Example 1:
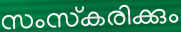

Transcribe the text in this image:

സംസ്‌കരിക്കും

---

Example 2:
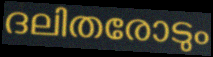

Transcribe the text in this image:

ദലിതരോടും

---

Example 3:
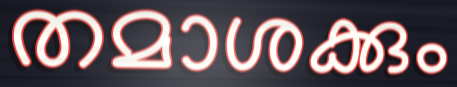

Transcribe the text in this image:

തമാശക്കും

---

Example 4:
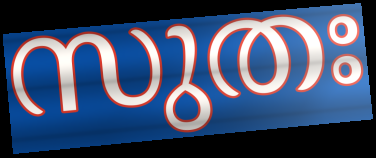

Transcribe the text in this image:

സുതഃ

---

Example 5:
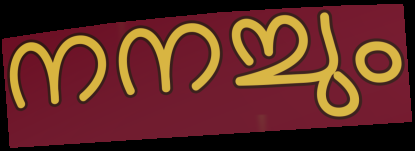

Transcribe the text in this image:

നനച്ചും